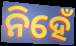
ନିହେଁ